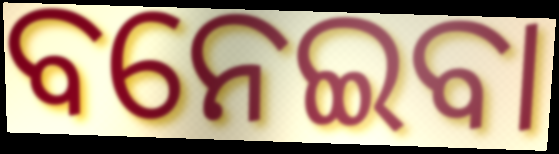
ବନେଇବା